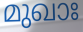
മുഖാഃ